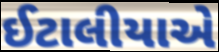
ઈટાલીયાએ